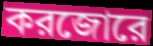
করজোরে